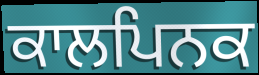
ਕਾਲਪਿਨਕ